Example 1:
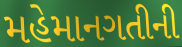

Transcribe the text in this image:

મહેમાનગતીની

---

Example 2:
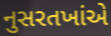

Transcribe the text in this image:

નુસરતખાંએ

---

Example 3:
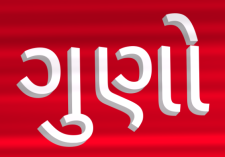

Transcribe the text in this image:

ગુણો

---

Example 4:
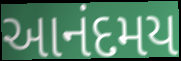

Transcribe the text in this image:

આનંદમય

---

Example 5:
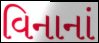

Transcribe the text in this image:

વિનાનાં